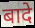
बादे